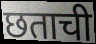
छताची